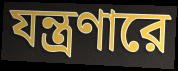
যন্ত্রণারে